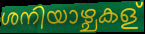
ശനിയാഴ്ചകള്